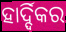
ହାର୍ଦ୍ଦିକର